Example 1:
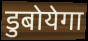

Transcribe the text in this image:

डुबोयेगा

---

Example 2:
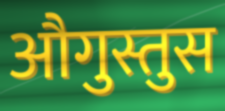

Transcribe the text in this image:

औगुस्तुस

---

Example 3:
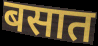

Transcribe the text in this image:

बसात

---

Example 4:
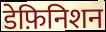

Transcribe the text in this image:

डेफ़िनिशन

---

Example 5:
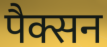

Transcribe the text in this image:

पैक्सन